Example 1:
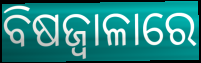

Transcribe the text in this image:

ବିଷଜ୍ୱାଳାରେ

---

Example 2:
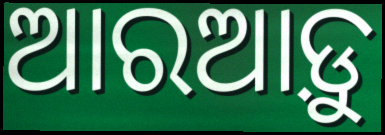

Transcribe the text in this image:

ଆରଆଡ଼ୁ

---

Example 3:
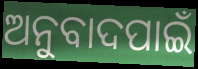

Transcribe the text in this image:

ଅନୁବାଦପାଇଁ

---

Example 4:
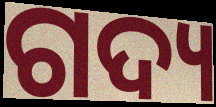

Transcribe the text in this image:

ଗଦ୍ୟ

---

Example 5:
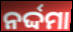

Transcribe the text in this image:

ନର୍ଦ୍ଦମା